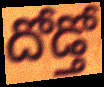
దోడ్తో